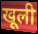
खूली